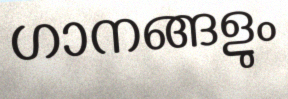
ഗാനങ്ങളും